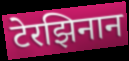
टेरझिनान